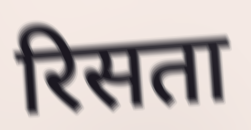
रिसता